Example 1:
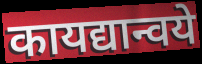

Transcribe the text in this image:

कायद्यान्वये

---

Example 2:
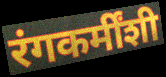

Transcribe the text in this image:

रंगकर्मींशी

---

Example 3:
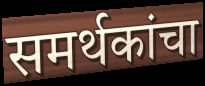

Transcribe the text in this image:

समर्थकांचा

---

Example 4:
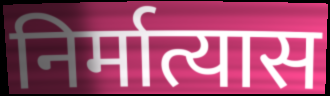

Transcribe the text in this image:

निर्मात्यास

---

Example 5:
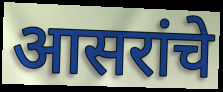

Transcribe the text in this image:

आसरांचे